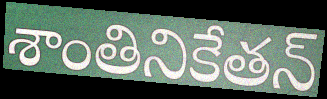
శాంతినికేతన్